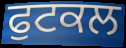
ਫੁਟਕਲ